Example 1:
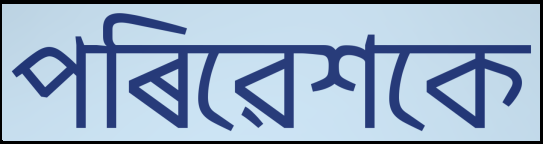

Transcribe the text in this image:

পৰিৱেশকে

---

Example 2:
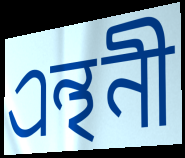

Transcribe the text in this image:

এন্থনী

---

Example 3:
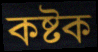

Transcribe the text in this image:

কষ্টক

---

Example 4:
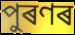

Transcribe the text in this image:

পুৰণৰ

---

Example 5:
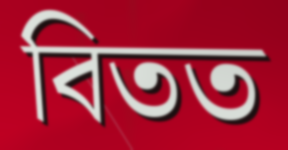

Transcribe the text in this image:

বিতত